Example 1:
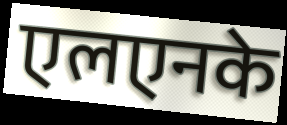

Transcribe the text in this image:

एलएनके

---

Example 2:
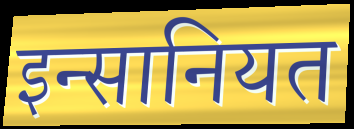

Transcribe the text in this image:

इन्सानियत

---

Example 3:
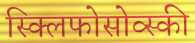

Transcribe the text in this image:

स्क्लिफोसोव्स्की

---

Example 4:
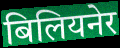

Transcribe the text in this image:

बिलियनेर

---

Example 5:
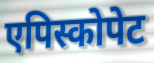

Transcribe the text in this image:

एपिस्कोपेट